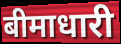
बीमाधारी